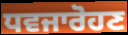
ਧਵਜਾਰੋਹਣ